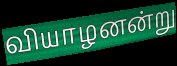
வியாழனன்று